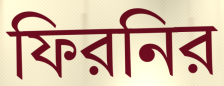
ফিরনির